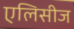
एलिसीज